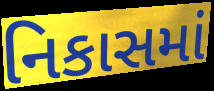
નિકાસમાં